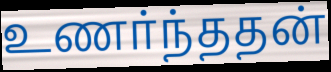
உணர்ந்ததன்